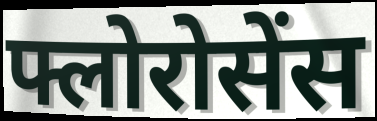
फ्लोरोसेंस